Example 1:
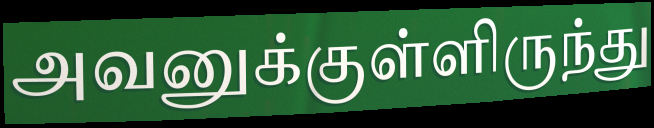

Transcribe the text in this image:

அவனுக்குள்ளிருந்து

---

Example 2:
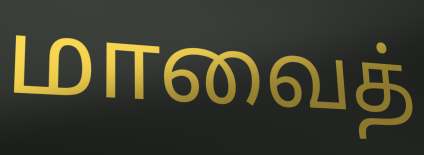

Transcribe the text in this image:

மாவைத்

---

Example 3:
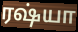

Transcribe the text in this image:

ரஷ்யா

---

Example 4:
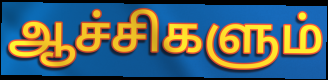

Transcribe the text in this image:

ஆச்சிகளும்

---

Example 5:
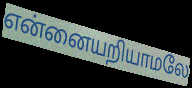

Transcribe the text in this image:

என்னையறியாமலே